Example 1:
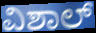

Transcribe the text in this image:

ವಿಶಾಲ್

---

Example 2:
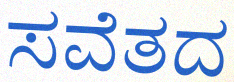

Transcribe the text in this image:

ಸವೆತದ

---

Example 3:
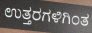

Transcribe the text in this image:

ಉತ್ತರಗಳಿಗಿಂತ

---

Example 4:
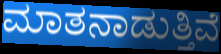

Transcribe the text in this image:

ಮಾತನಾಡುತ್ತಿವೆ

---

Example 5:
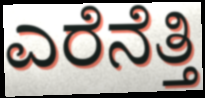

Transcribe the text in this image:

ಎರೆನೆತ್ತಿ